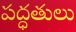
పద్ధతులు